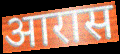
आरास